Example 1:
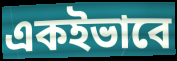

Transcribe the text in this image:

একইভাবে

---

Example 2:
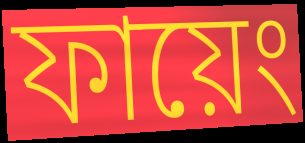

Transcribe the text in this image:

ফায়েং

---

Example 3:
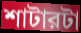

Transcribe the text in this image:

শাটারটা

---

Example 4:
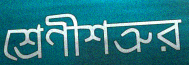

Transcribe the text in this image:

শ্রেণীশত্রুর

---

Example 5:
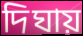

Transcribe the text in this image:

দিঘায়